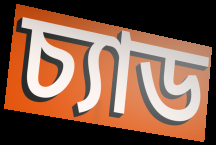
চ্যাড